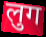
लुग